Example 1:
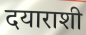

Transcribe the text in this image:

दयाराशी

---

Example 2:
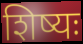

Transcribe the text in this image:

शिष्यः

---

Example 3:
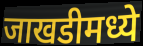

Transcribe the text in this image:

जाखडीमध्ये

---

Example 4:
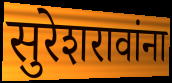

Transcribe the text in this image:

सुरेशरावांना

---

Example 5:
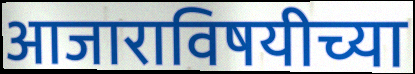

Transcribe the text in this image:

आजाराविषयीच्या